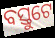
ବସ୍ତୁଟେ